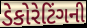
ડેકોરેટિંગની